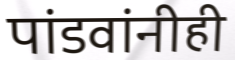
पांडवांनीही